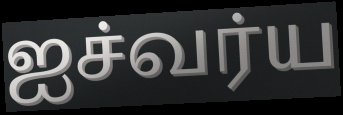
ஐச்வர்ய